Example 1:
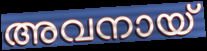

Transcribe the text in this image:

അവനായ്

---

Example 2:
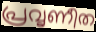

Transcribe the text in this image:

പ്രവൃണീത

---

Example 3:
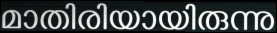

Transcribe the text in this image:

മാതിരിയായിരുന്നു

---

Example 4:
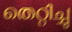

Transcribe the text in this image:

തെറ്റിച്ചു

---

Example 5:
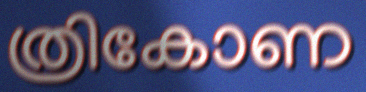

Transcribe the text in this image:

ത്രികോണ